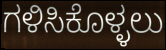
ಗಳಿಸಿಕೊಳ್ಳಲು